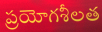
ప్రయోగశీలత